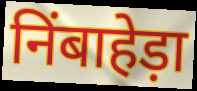
निंबाहेड़ा